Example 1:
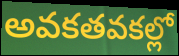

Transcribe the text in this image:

అవకతవకల్లో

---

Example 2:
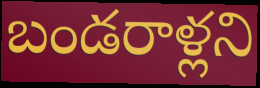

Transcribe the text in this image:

బండరాళ్లని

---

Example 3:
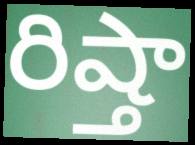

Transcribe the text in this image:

రిష్తా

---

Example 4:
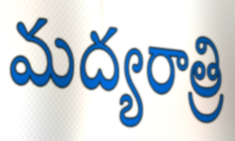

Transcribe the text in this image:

మద్యరాత్రి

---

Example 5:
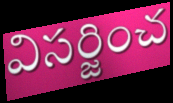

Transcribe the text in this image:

విసర్జించ